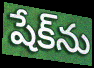
షేక్‌ను